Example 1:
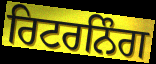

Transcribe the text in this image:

ਰਿਟਰਨਿੰਗ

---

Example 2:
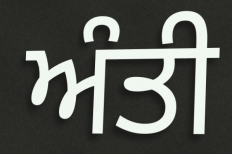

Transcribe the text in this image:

ਅੰਤੀ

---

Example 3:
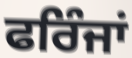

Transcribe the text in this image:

ਫਰਿੰਜਾਂ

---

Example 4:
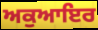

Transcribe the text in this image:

ਅਕੁਆਇਰ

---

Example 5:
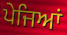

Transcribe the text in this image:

ਪੇਜਿਆਂ